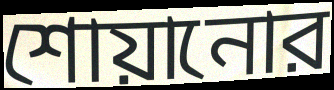
শোয়ানোর